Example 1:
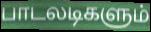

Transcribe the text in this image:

பாடலடிகளும்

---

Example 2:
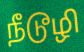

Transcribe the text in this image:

நீடூழி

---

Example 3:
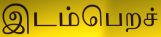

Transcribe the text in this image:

இடம்பெறச்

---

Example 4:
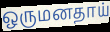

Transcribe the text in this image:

ஒருமனதாய்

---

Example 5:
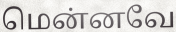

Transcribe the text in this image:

மென்னவே